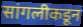
सांगलीकडून